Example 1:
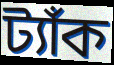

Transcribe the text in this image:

ট্যাঁক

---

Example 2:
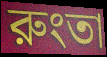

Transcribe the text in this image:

রুংতা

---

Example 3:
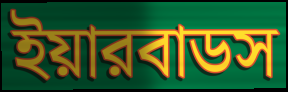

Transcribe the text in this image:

ইয়ারবাডস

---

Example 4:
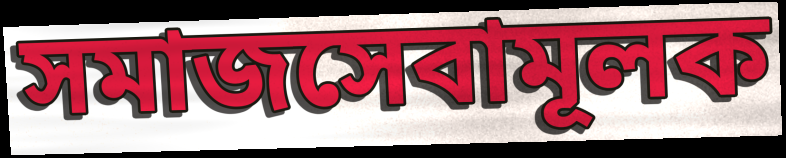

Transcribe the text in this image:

সমাজসেবামূলক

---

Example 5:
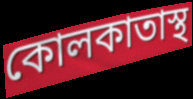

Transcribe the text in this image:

কোলকাতাস্থ